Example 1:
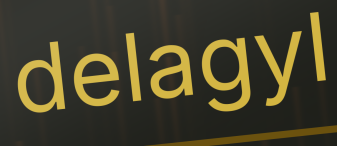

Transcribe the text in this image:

delagyl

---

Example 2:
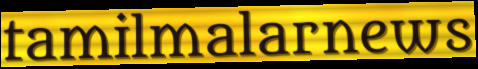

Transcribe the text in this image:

tamilmalarnews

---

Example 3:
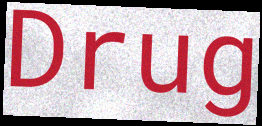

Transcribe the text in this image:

Drug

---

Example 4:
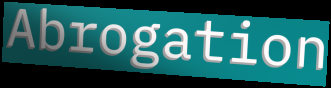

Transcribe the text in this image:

Abrogation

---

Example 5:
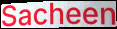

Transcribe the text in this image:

Sacheen